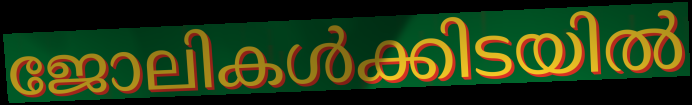
ജോലികൾക്കിടയിൽ